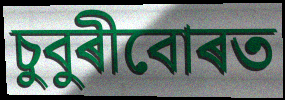
চুবুৰীবোৰত